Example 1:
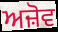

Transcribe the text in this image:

ਅਜ਼ੋਵ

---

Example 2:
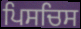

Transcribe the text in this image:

ਪਿਸਚਿਸ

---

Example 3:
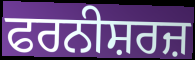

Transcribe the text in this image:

ਫਰਨੀਸ਼ਰਜ਼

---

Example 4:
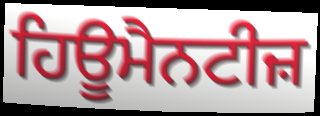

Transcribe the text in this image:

ਹਿਊਮੈਨਟੀਜ਼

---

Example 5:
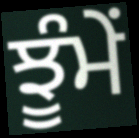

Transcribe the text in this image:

ਝੂੰਮੇਂ